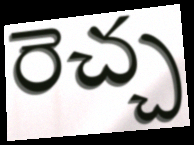
రెచ్చ